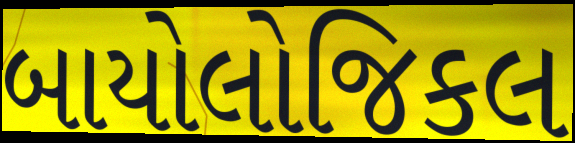
બાયોલોજિકલ